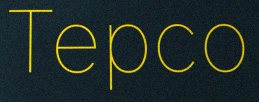
Tepco